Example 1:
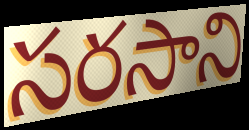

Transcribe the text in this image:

సరసాని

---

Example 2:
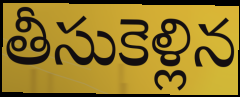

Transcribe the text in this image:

తీసుకెళ్లిన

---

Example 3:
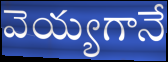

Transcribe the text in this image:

వెయ్యగానే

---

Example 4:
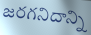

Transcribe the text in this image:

జరగనిదాన్ని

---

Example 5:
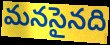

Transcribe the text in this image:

మనసైనది